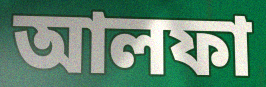
আলফা